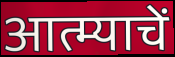
आत्म्याचें